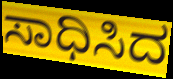
ಸಾಧಿಸಿದ